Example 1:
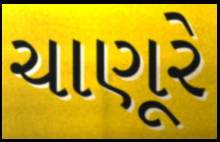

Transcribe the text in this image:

ચાણૂરે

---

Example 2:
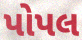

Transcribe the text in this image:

પોપલ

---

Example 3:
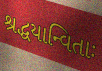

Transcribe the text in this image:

શ્રદ્ધયાન્વિતાઃ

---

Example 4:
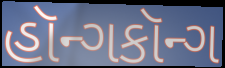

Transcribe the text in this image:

હૉન્ગકૉન્ગ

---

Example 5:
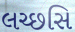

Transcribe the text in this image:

લચ્છસિ